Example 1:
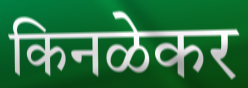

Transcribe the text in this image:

किनळेकर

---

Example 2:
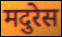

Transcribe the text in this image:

मदुरेस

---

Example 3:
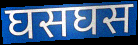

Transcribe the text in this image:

घसघस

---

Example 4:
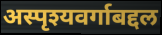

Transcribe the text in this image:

अस्पृश्यवर्गाबद्दल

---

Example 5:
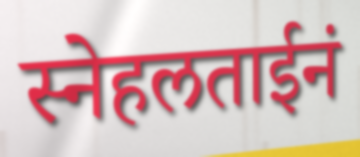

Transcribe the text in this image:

स्नेहलताईनं